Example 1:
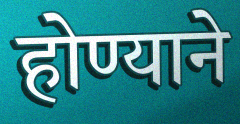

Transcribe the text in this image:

होण्याने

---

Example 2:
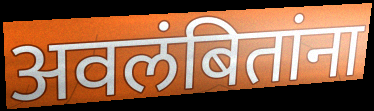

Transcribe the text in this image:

अवलंबितांना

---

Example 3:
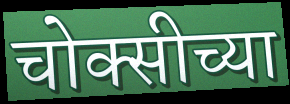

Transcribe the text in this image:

चोक्सीच्या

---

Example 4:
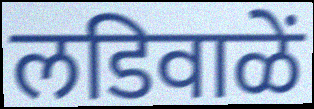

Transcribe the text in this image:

लडिवाळें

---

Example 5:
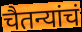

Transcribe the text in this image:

चैतन्यांचं